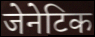
जेनेटिक